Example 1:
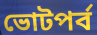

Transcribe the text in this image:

ভোটপর্ব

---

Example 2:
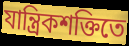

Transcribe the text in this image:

যান্ত্রিকশক্তিতে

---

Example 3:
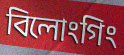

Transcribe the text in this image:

বিলোংগিং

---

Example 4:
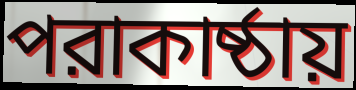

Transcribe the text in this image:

পরাকাষ্ঠায়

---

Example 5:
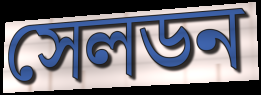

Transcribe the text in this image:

সেলডন